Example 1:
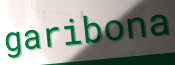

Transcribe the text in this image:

garibona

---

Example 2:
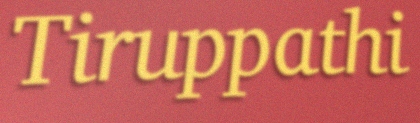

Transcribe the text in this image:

Tiruppathi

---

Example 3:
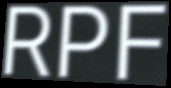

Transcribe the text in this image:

RPF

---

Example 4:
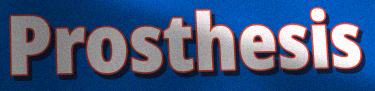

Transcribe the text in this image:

Prosthesis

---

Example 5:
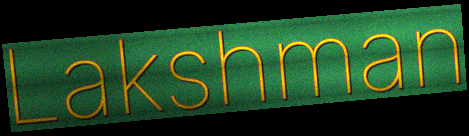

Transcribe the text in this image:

Lakshman